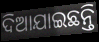
ଦିଆଯାଇଛନ୍ତି